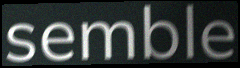
semble